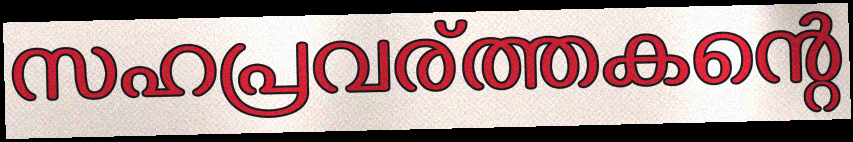
സഹപ്രവര്ത്തകന്റെ